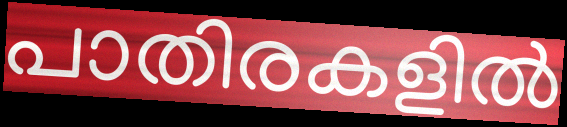
പാതിരകളിൽ